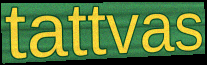
tattvas